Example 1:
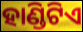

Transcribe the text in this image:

ହାଣ୍ଡିଟିଏ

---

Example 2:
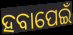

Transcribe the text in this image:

ହବାପେଇଁ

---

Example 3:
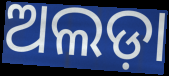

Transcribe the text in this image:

ଅଲଡ଼ା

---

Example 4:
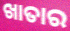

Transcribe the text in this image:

ଖାତାର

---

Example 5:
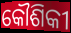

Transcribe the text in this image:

କୌଶିକୀ